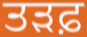
ਤੜਫ਼